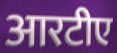
आरटीए